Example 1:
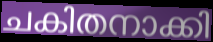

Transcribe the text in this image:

ചകിതനാക്കി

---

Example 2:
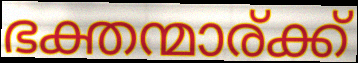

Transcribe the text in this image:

ഭക്തന്മാര്ക്ക്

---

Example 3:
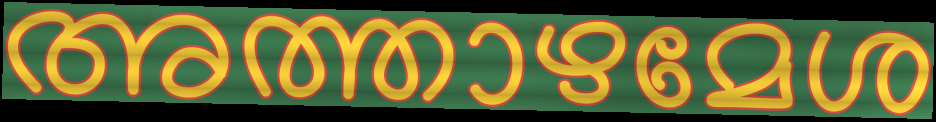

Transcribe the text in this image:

അത്താഴമേശ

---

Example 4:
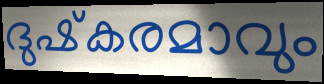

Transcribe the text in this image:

ദുഷ്‌കരമാവും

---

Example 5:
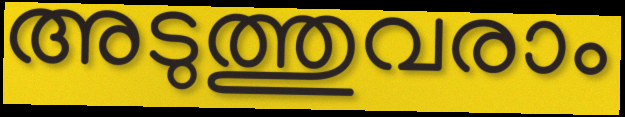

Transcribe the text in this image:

അടുത്തുവരാം